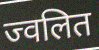
ज्वलित